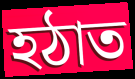
হঠাত